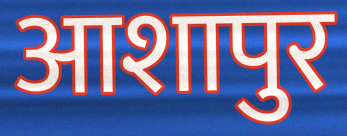
आशापुर